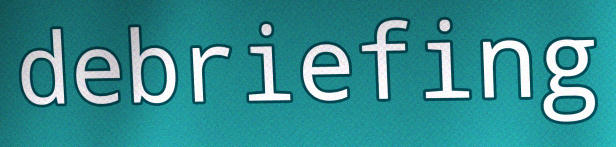
debriefing